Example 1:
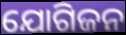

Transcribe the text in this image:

ଯୋଗିଜନ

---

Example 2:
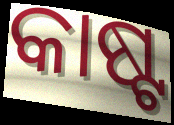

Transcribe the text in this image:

କାଷ୍ଟ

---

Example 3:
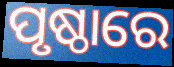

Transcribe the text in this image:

ପୃଷ୍ଠାରେ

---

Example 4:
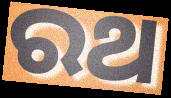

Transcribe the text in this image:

ରଥ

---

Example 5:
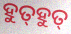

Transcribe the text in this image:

ହୁତ୍‌ହୁତ୍